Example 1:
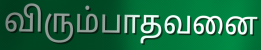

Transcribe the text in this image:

விரும்பாதவனை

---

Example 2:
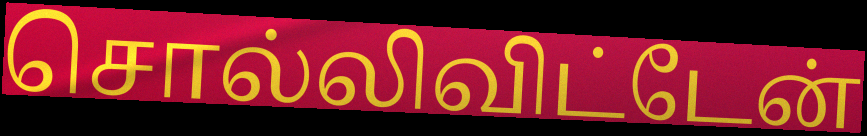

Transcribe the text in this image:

சொல்லிவிட்டேன்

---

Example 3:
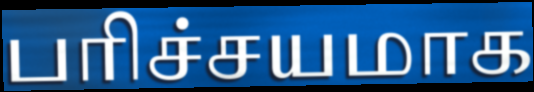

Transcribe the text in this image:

பரிச்சயமாக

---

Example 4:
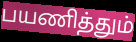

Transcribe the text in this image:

பயணித்தும்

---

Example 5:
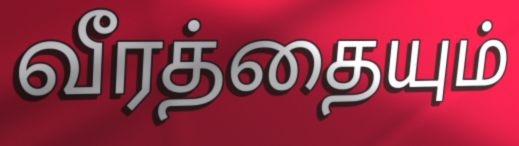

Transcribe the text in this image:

வீரத்தையும்